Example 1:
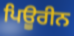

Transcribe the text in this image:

ਪਿਊਰੀਨ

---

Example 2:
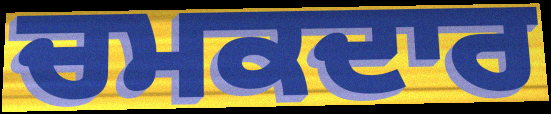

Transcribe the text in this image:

ਚਮਕਦਾਰ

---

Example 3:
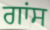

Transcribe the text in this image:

ਗਾਂਸ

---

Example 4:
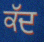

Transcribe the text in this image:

ਕੱਦ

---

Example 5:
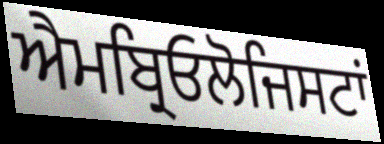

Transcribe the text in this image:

ਐਮਬ੍ਰਿਓਲੋਜਿਸਟਾਂ